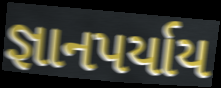
જ્ઞાનપર્યાય